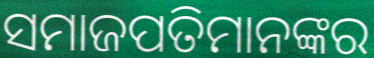
ସମାଜପତିମାନଙ୍କର